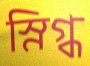
স্নিগ্ধ